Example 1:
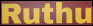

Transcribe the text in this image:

Ruthu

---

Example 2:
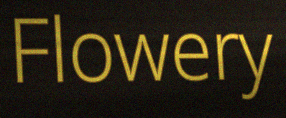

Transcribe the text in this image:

Flowery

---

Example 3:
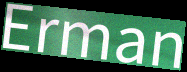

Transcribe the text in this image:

Erman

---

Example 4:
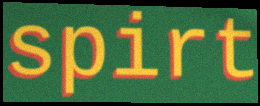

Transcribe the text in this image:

spirt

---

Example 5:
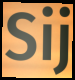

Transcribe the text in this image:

Sij